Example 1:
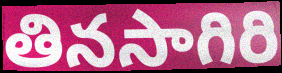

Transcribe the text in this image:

తినసాగిరి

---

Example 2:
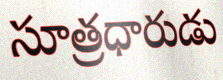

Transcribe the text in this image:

సూత్రధారుడు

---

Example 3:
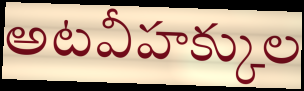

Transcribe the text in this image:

అటవీహక్కుల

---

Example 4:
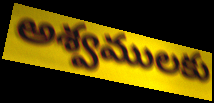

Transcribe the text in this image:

అశ్వములకు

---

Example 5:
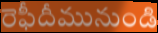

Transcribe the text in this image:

రెఫీదీమునుండి